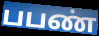
பபண்